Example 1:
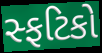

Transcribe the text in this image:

સ્ફટિકો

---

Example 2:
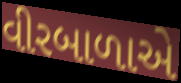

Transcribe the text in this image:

વીરબાળાએ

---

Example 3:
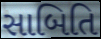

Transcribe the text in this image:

સાબિતિ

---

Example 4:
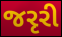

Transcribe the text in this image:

જરૃરી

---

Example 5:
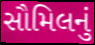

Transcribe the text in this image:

સૌમિલનું